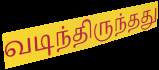
வடிந்திருந்தது